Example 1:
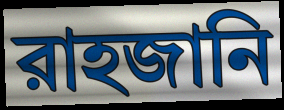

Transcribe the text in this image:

রাহজানি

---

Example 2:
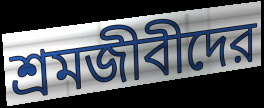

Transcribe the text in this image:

শ্রমজীবীদের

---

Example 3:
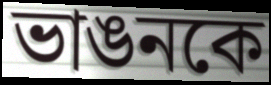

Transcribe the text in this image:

ভাঙনকে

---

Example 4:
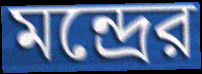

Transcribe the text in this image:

মন্দ্রের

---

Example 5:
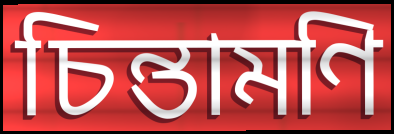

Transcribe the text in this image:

চিন্তামণি